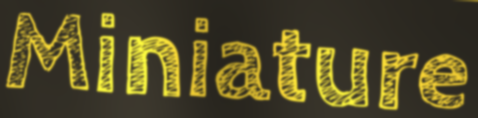
Miniature